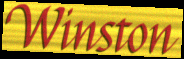
Winston